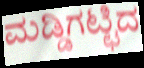
ಮಡ್ಡಿಗಟ್ಟಿದ